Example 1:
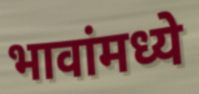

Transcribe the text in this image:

भावांमध्ये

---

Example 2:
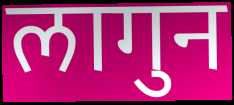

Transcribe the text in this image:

लागुन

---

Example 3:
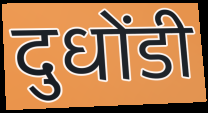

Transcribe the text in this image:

दुधोंडी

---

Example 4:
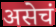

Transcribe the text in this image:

असेचं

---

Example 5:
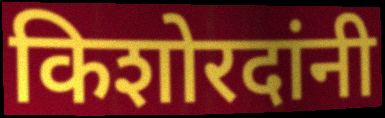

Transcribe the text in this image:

किशोरदांनी